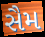
સૈમ